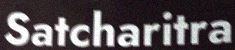
Satcharitra